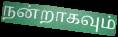
நன்றாகவும்